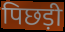
पिछड़ी